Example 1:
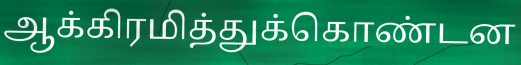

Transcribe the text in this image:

ஆக்கிரமித்துக்கொண்டன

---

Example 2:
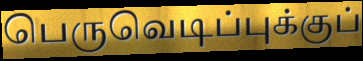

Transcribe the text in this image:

பெருவெடிப்புக்குப்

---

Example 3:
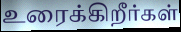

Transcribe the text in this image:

உரைக்கிறீர்கள்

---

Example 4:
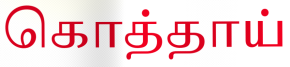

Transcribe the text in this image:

கொத்தாய்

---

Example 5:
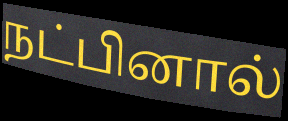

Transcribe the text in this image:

நட்பினால்